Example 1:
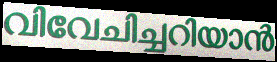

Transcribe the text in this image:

വിവേചിച്ചറിയാൻ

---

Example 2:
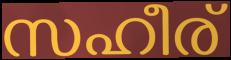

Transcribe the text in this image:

സഹീര്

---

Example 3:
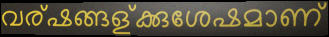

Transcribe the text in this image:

വര്ഷങ്ങള്ക്കുശേഷമാണ്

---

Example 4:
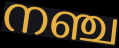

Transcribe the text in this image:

നഞ്ച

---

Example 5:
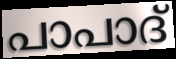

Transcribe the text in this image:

പാപാദ്